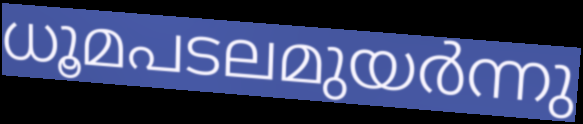
ധൂമപടലമുയർന്നു